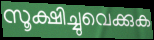
സൂക്ഷിച്ചുവെക്കുക